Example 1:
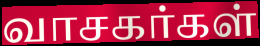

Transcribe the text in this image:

வாசகர்கள்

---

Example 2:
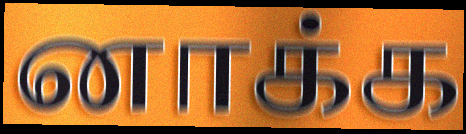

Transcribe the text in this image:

னாக்க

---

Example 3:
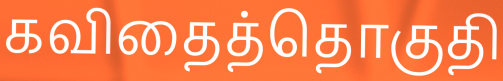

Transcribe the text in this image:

கவிதைத்தொகுதி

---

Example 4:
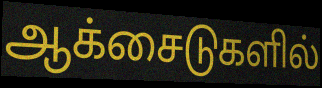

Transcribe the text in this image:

ஆக்சைடுகளில்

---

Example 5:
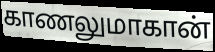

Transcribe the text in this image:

காணலுமாகான்